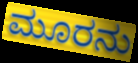
ಮೂರನು